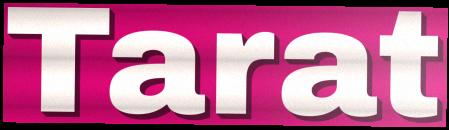
Tarat